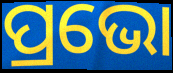
ପ୍ରଭୋ